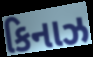
કિનાઝ